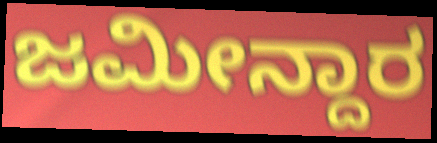
ಜಮೀನ್ದಾರ